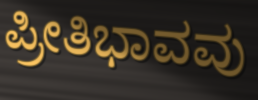
ಪ್ರೀತಿಭಾವವು